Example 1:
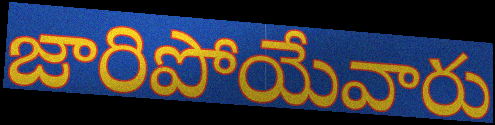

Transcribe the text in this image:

జారిపోయేవారు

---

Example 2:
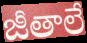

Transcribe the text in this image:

జీతాలే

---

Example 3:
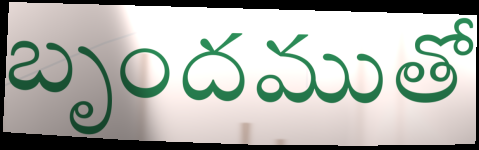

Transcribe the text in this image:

బృందముతో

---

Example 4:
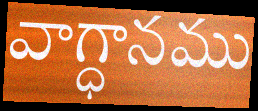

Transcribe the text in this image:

వాగ్ధానము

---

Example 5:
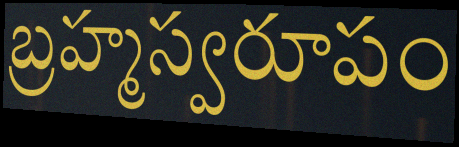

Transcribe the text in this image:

బ్రహ్మస్వరూపం